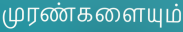
முரண்களையும்